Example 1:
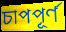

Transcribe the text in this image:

চাপপূর্ণ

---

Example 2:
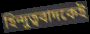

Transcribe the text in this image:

হিন্দুত্ববাদকেই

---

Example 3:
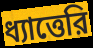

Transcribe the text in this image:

ধ্যাত্তেরি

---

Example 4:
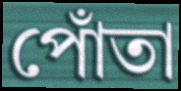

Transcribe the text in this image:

পোঁতা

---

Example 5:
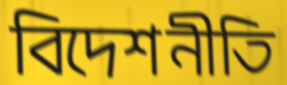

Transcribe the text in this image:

বিদেশনীতি